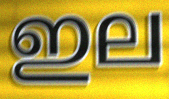
ഇല